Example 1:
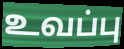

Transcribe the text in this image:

உவப்பு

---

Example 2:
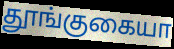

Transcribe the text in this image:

தூங்குகையா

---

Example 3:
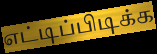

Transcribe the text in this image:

எட்டிப்பிடிக்க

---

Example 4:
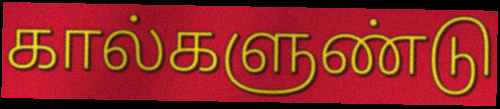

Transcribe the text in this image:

கால்களுண்டு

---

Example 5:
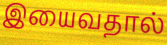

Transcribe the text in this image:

இயைவதால்